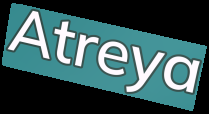
Atreya